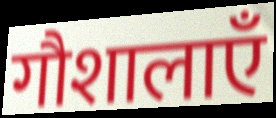
गौशालाएँ